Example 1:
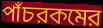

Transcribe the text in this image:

পাঁচরকমের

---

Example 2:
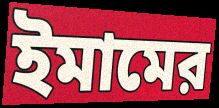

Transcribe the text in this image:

ইমামের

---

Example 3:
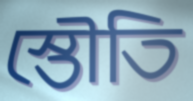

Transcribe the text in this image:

স্তৌতি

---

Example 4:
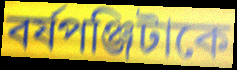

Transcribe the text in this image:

বর্ষপঞ্জিটাকে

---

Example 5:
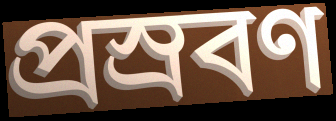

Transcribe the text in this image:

প্রস্রবণ